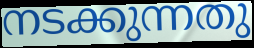
നടക്കുന്നതു